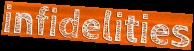
infidelities